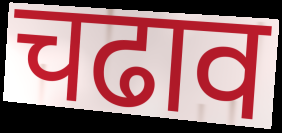
चढाव